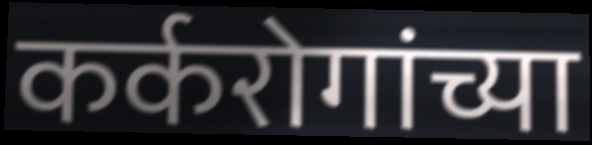
कर्करोगांच्या